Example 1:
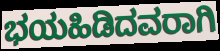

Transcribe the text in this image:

ಭಯಹಿಡಿದವರಾಗಿ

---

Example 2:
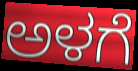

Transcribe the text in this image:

ಅಳಗೆ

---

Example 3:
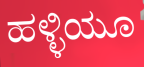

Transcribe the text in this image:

ಹಳ್ಳಿಯೂ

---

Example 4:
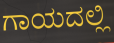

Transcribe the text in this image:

ಗಾಯದಲ್ಲಿ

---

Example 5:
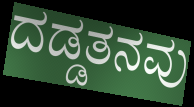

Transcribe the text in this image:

ದಡ್ಡತನವು